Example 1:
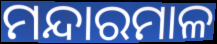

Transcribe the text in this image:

ମନ୍ଦାରମାଳ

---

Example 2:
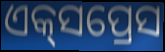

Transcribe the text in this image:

ଏକ୍‍ସପ୍ରେସ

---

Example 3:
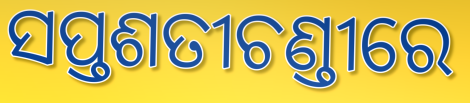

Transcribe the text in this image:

ସପ୍ତଶତୀଚଣ୍ଡୀରେ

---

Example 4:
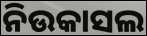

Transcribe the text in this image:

ନିଉକାସଲ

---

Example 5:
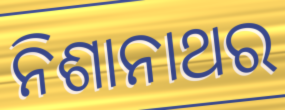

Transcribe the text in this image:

ନିଶାନାଥର